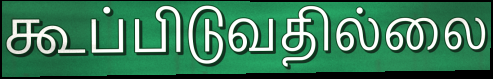
கூப்பிடுவதில்லை